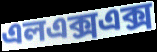
এলএক্সএক্স